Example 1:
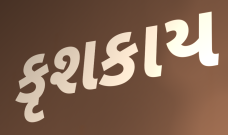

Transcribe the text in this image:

કૃશકાય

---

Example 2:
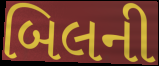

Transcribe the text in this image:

બિલની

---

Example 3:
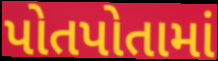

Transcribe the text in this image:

પોતપોતામાં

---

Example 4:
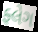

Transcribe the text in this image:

ફ્લેગ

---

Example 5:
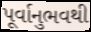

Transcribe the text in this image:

પૂર્વાનુભવથી